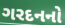
ગરદનનો